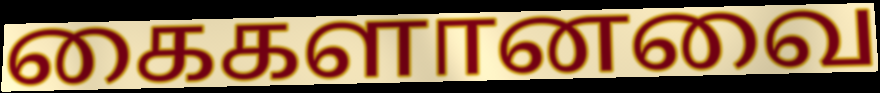
கைகளானவை